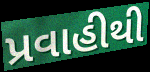
પ્રવાહીથી